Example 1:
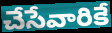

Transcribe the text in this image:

చేసేవారికే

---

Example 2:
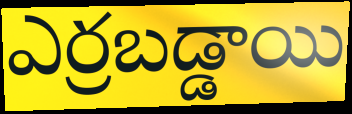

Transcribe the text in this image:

ఎర్రబడ్డాయి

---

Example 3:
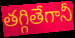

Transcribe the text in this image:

తగ్గితేగానీ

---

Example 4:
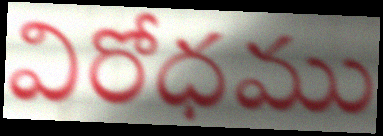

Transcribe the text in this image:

విరోధము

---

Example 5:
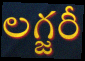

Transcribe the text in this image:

లగ్జరీ